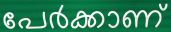
പേർക്കാണ്